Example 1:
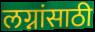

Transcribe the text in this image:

लग्नांसाठी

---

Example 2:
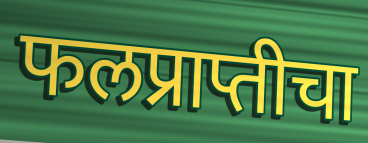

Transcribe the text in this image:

फलप्राप्तीचा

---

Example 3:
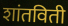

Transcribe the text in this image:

शांतविती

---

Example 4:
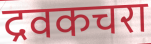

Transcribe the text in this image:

द्रवकचरा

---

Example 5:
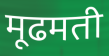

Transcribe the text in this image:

मूढमती